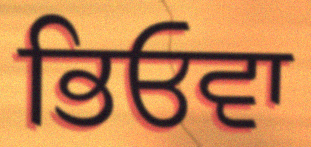
ਭਿਓਵਾ